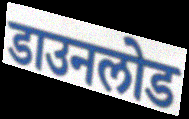
डाउनलोड